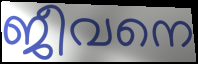
ജീവനെ